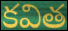
కవిత